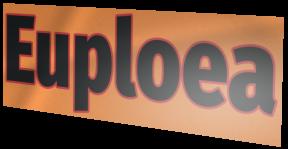
Euploea